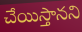
చేయిస్తానని